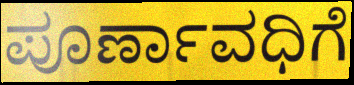
ಪೂರ್ಣಾವಧಿಗೆ